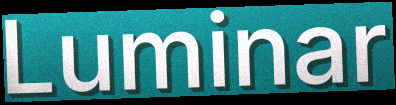
Luminar